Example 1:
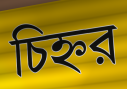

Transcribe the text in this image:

চিহ্নর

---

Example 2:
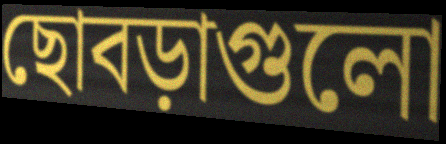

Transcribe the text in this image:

ছোবড়াগুলো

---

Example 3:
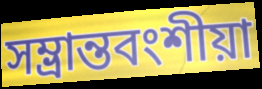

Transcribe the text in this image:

সম্ভ্রান্তবংশীয়া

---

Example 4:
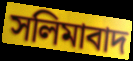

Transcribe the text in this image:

সলিমাবাদ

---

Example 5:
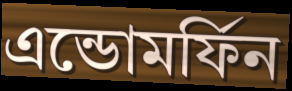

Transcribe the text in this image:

এন্ডোমর্ফিন